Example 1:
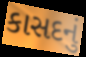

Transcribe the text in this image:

કાસદનું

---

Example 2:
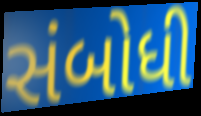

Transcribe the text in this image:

સંબોધી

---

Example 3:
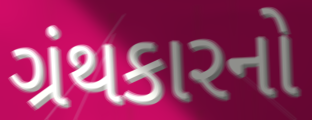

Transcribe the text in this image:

ગ્રંથકારનો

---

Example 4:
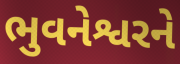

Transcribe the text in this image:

ભુવનેશ્વરને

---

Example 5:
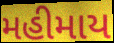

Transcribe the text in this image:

મહીમાય